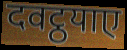
दवट्ठयाए